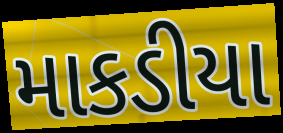
માકડીયા